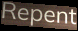
Repent